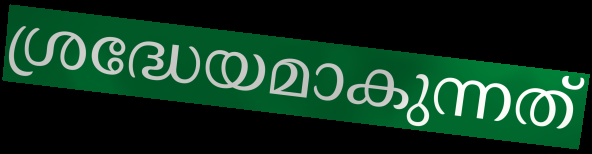
ശ്രദ്ധേയമാകുന്നത്